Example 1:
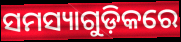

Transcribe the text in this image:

ସମସ୍ୟାଗୁଡ଼ିକରେ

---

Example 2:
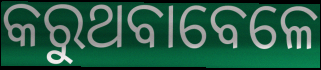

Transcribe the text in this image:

କରୁଥବାବେଳେ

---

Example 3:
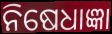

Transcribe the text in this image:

ନିଷେଧାଜ୍ଞା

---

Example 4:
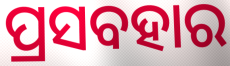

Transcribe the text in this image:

ପ୍ରସବହାର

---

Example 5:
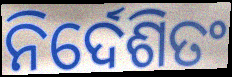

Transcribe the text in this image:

ନିର୍ଦେଶିତଂ